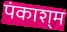
पंकाश्म